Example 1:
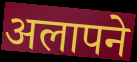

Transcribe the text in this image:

अलापने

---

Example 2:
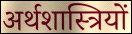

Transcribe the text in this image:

अर्थशास्त्रियों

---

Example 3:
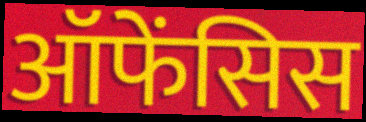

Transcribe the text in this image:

ऑफेंसिस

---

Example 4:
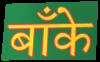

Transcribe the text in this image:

बाँके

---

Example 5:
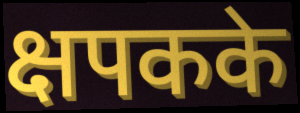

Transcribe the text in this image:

क्षपकके